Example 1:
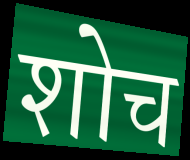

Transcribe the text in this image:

शोच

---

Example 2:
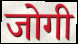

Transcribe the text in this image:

जोगी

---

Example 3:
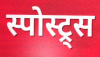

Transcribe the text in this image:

स्पोस्ट्र्स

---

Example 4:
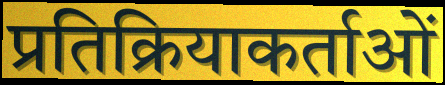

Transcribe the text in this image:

प्रतिक्रियाकर्ताओं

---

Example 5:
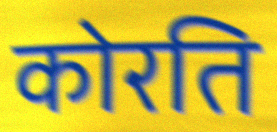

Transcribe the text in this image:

कोरति